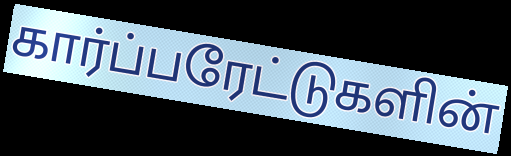
கார்ப்பரேட்டுகளின்